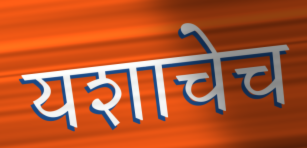
यशाचेच